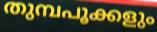
തുമ്പപൂക്കളും